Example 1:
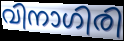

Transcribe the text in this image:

വിനാഗിരി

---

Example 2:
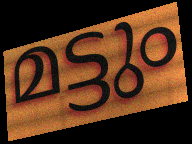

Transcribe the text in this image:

മട്ടും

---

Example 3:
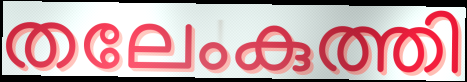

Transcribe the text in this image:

തലേംകുത്തി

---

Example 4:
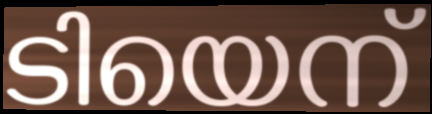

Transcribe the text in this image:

ടിയെന്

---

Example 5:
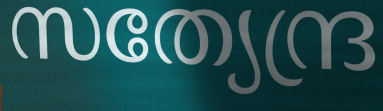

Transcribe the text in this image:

സത്യേന്ദ്ര